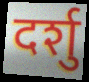
दर्शु